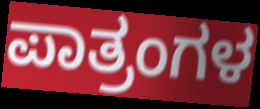
ಪಾತ್ರಂಗಳ